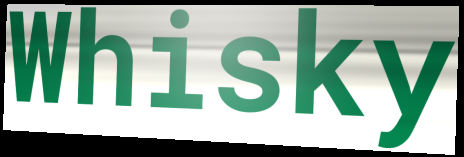
Whisky